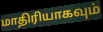
மாதிரியாகவும்